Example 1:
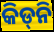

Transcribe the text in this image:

କିଡ୍‌ନି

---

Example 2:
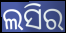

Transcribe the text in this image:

ଲସିର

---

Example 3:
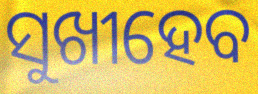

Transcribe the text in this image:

ସୁଖୀହେବ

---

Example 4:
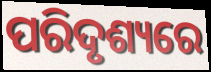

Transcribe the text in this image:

ପରିଦୃଶ୍ୟରେ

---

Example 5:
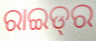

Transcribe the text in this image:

ରାଇଡ୍‌ର